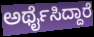
ಅರ್ಥೈಸಿದ್ದಾರೆ